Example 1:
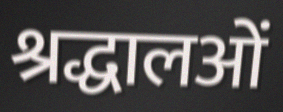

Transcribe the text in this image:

श्रद्धालओं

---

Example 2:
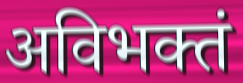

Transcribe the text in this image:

अविभक्तं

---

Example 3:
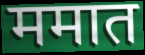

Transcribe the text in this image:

ममात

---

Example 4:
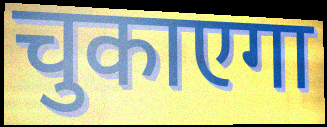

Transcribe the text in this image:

चुकाएगा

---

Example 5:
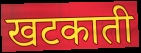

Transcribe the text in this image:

खटकाती